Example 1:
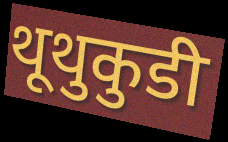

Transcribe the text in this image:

थूथुकुडी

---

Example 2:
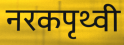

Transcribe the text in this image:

नरकपृथ्वी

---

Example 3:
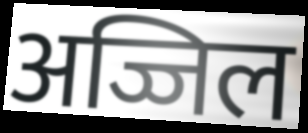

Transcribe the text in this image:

अज्जिल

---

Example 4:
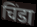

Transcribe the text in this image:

चिंडा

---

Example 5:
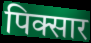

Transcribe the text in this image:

पिक्सार